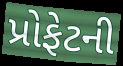
પ્રોફેટની